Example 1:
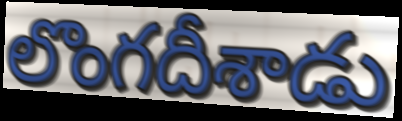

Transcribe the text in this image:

లొంగదీశాడు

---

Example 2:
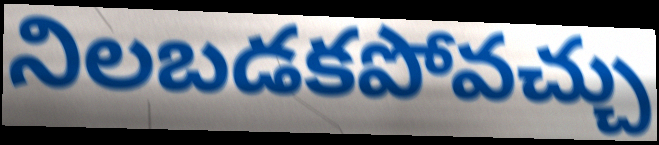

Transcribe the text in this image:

నిలబడకపోవచ్చు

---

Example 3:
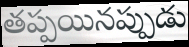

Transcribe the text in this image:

తప్పయినప్పుడు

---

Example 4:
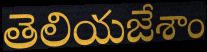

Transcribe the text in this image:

తెలియజేశాం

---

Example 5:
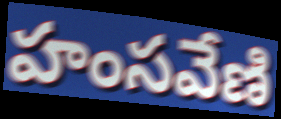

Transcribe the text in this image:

హంసవేణి